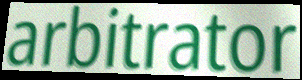
arbitrator